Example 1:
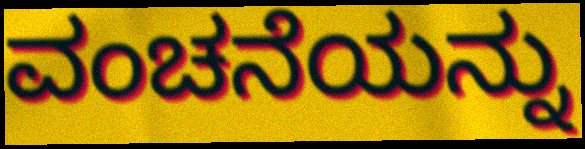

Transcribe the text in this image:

ವಂಚನೆಯನ್ನು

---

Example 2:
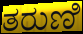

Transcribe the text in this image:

ತರುಣಿ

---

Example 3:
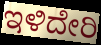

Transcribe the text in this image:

ಇಳಿದೇರಿ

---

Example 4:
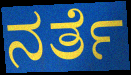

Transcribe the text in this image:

ನರ್ತೆ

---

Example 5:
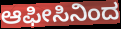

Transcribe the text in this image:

ಆಫೀಸಿನಿಂದ